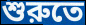
শুরুতে